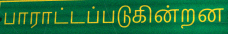
பாராட்டப்படுகின்றன